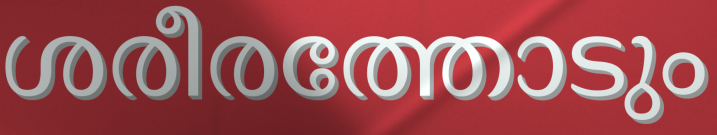
ശരീരത്തോടും